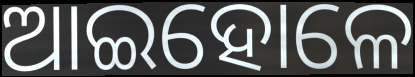
ଆଇହୋଳେ